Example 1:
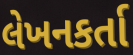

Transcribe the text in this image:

લેખનકર્તા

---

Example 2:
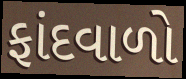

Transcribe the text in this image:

ફાંદવાળો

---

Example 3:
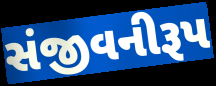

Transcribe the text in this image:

સંજીવનીરૂપ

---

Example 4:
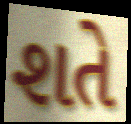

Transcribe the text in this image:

શતે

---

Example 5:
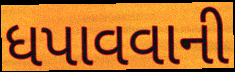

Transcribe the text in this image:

ધપાવવાની